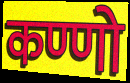
कण्णो